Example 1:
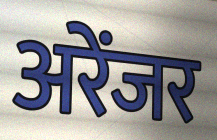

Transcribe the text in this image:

अरेंजर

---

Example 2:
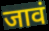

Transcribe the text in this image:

जावं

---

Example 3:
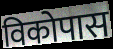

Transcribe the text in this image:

विकोपास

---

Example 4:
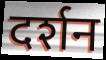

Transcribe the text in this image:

दर्शन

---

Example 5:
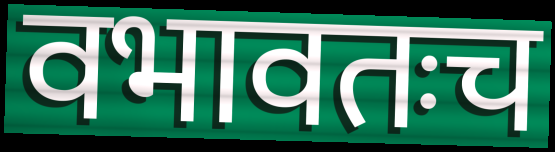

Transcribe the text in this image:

वभावतःच